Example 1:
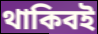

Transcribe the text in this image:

থাকিবই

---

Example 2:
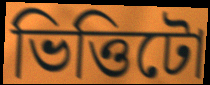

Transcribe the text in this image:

ভিত্তিটো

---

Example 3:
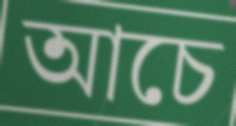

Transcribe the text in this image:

আচে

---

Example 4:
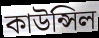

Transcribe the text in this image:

কাউন্সিল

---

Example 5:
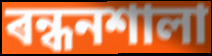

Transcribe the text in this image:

ৰন্ধনশালা